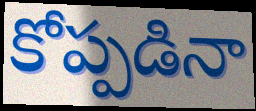
కోప్పడినా